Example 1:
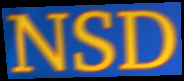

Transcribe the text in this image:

NSD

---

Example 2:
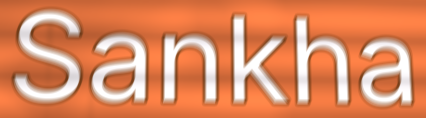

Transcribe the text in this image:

Sankha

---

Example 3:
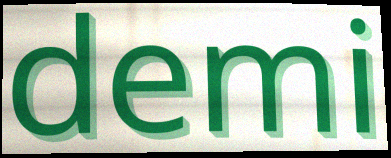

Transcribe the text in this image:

demi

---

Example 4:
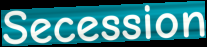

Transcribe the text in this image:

Secession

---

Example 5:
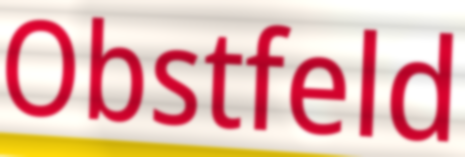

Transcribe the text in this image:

Obstfeld